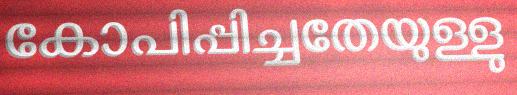
കോപിപ്പിച്ചതേയുള്ളു